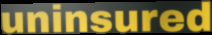
uninsured